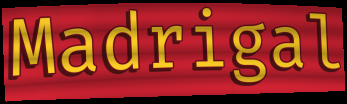
Madrigal